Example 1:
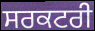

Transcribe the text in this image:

ਸਰਕਟਰੀ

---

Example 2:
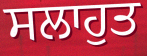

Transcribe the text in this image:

ਸਲਾਹੁਤ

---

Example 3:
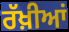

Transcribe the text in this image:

ਰੱਖ਼ੀਆਂ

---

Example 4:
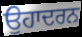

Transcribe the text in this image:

ਉਹਾਦਰਨ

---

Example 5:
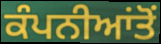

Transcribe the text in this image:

ਕੰਪਨੀਆਂਤੋਂ